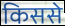
किससे